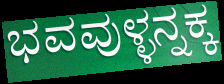
ಭವವುಳ್ಳನ್ನಕ್ಕ